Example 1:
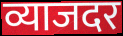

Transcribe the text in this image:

व्याजदर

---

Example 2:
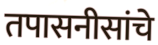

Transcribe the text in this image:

तपासनीसांचे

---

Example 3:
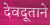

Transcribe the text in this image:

देवदूताने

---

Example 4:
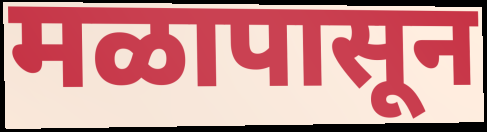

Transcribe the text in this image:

मळापासून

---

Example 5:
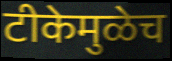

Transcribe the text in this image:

टीकेमुळेच